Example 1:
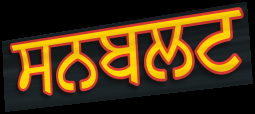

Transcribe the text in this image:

ਸਨਬਲਟ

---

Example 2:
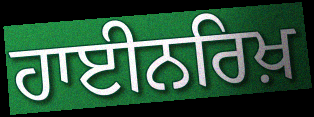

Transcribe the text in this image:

ਹਾਈਨਰਿਖ਼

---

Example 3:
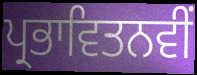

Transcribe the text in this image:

ਪ੍ਰਭਾਵਿਤਨਵੀਂ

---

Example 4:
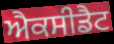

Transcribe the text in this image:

ਐਕਸੀਡੈਟ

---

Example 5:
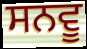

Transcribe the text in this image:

ਸਨਵੂ